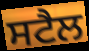
ਸਟੈਲ